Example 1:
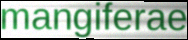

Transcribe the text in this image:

mangiferae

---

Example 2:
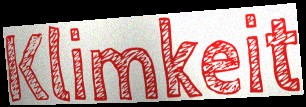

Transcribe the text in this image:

Klimkeit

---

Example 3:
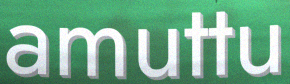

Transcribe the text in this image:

amuttu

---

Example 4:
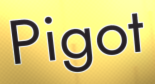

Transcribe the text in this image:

Pigot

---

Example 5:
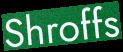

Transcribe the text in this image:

Shroffs